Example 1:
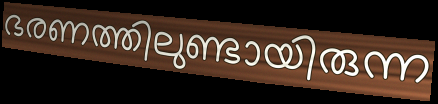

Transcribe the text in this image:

ഭരണത്തിലുണ്ടായിരുന്ന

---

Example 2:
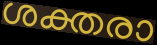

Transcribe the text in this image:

ശക്തരാ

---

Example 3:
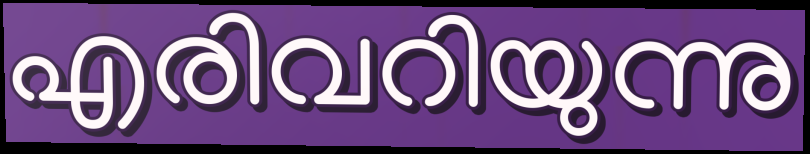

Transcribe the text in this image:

എരിവറിയുന്നു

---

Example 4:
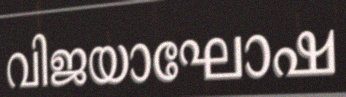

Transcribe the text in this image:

വിജയാഘോഷ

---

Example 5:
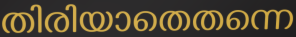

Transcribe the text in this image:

തിരിയാതെതന്നെ